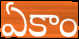
ఏకాం